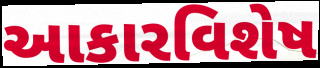
આકારવિશેષ